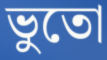
ভুতো